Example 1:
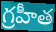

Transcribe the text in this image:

గ్రహీత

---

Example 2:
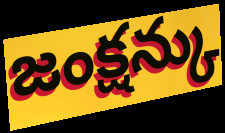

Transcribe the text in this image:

జంక్షన్కు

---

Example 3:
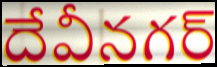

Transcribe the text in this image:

దేవీనగర్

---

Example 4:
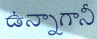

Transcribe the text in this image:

ఉన్నాగానీ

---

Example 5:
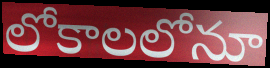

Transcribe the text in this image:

లోకాలలోనూ